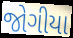
જોગીયા